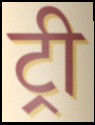
ट्री